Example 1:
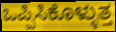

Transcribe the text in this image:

ಒಪ್ಪಿಸಿಕೊಳ್ಳುತ್ತ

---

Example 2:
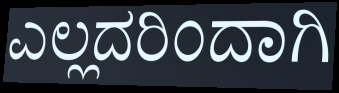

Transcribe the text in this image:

ಎಲ್ಲದರಿಂದಾಗಿ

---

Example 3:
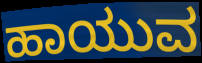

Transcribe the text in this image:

ಹಾಯುವ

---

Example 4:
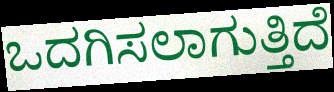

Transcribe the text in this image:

ಒದಗಿಸಲಾಗುತ್ತಿದೆ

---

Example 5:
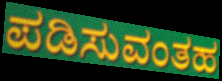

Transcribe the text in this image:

ಪಡಿಸುವಂತಹ